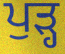
ਪੁੜ੍ਹ